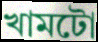
খামটো